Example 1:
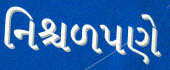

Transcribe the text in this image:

નિશ્ચળપણે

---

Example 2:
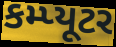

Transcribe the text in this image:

કમ્પ્યૂટર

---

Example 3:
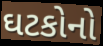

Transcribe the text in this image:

ઘટકોનો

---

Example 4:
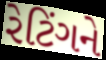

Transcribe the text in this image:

રેટિંગને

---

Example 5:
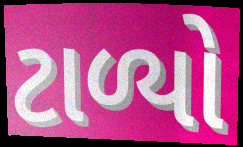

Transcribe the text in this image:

ટાળ્યો